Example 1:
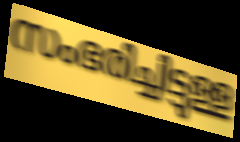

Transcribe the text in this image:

സംഭരിച്ചിട്ടുള്ള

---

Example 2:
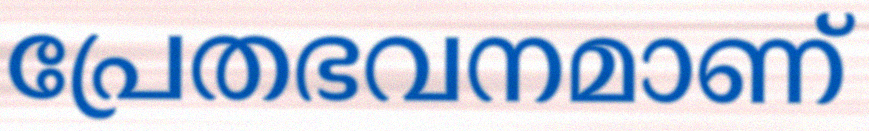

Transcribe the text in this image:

പ്രേതഭവനമാണ്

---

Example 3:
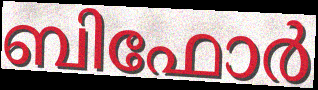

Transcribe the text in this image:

ബിഫോർ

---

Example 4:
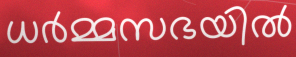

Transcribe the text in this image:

ധർമ്മസഭയിൽ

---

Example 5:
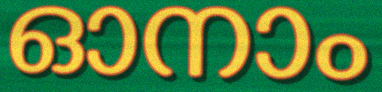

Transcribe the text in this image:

ഓനാം